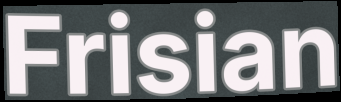
Frisian